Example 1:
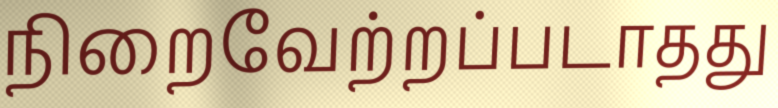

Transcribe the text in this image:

நிறைவேற்றப்படாதது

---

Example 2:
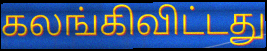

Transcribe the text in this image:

கலங்கிவிட்டது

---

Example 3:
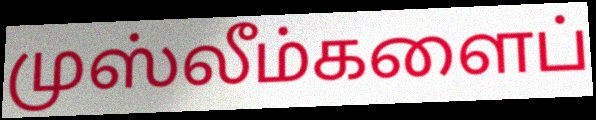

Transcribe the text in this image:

முஸ்லீம்களைப்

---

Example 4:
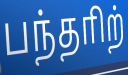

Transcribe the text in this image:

பந்தரிற்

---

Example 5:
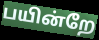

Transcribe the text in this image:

பயின்றே